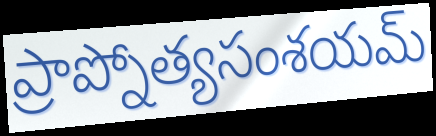
ప్రాప్నోత్యసంశయమ్